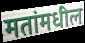
मतांमधील